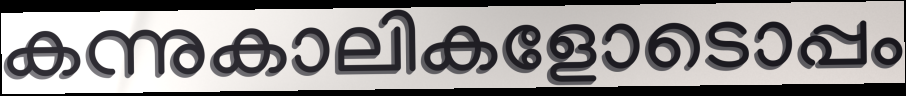
കന്നുകാലികളോടൊപ്പം